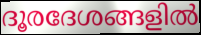
ദൂരദേശങ്ങളിൽ